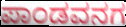
ಪಾಂಡವನಗ